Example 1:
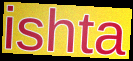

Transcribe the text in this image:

ishta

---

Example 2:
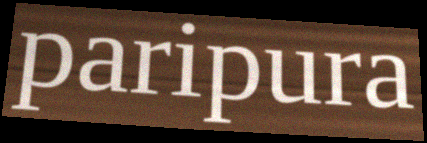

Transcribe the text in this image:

paripura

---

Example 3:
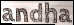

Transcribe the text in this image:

andha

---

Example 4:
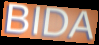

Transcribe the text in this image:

BIDA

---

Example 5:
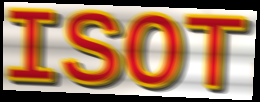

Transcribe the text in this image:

ISOT